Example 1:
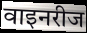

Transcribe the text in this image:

वाइनरीज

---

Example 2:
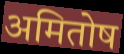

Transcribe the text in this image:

अमितोष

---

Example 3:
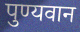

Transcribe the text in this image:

पुण्यवान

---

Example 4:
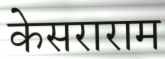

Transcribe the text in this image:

केसराराम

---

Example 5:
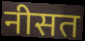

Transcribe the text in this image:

नीसत